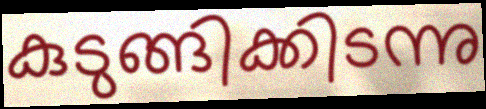
കുടുങ്ങിക്കിടന്നു